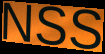
NSS